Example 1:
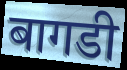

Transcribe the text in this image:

बागडी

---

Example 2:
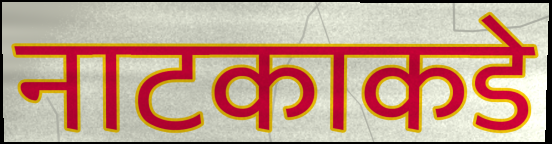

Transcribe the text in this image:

नाटकाकडे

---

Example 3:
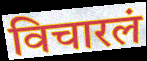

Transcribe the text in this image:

विचारलं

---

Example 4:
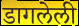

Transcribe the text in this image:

डागलेली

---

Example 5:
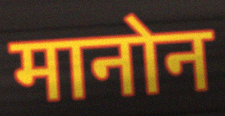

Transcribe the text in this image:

मानोन